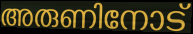
അരുണിനോട്